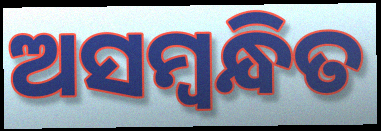
ଅସମ୍ବନ୍ଧିତ